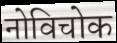
नोविचोक